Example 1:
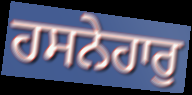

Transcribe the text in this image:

ਹਸਨੇਹਾਰੁ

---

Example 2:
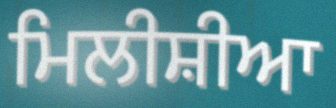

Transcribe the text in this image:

ਮਿਲੀਸ਼ੀਆ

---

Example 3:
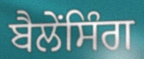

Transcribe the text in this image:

ਬੈਲੇਂਸਿੰਗ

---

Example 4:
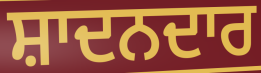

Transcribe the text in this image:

ਸ਼ਾਦਨਦਾਰ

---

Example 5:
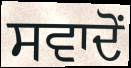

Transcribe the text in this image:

ਸਵਾਦੋਂ